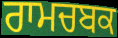
ਰਾਮਚਬਕ